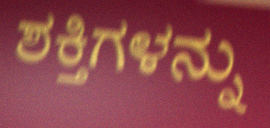
ಶಕ್ತಿಗಳನ್ನು